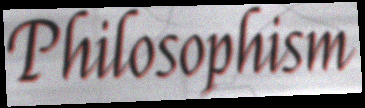
Philosophism